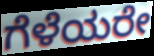
ಗೆಳೆಯರೇ